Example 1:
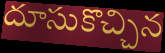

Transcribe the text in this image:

దూసుకొచ్చిన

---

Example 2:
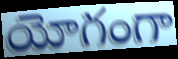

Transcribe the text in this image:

యోగంగా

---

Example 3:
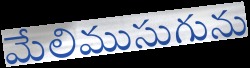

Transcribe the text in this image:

మేలిముసుగును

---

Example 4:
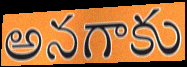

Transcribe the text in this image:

అనగాకు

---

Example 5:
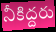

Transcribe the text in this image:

నీకిద్దరు